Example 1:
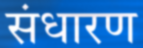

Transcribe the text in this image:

संधारण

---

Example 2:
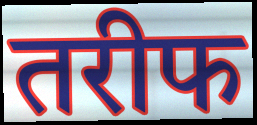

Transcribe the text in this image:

तरीफ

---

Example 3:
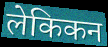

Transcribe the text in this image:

लेकिकन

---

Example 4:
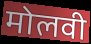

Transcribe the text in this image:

मोलवी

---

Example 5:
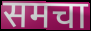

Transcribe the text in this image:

समचा